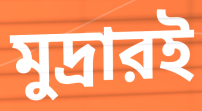
মুদ্রারই